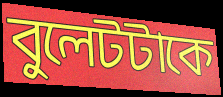
বুলেটটাকে